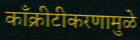
काँक्रीटीकरणामुळे